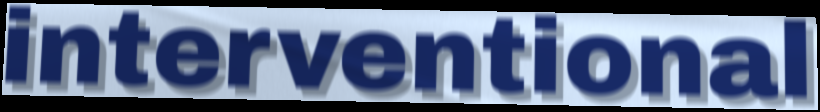
interventional